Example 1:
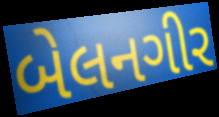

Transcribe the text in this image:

બેલનગીર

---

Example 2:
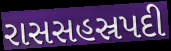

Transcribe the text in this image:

રાસસહસ્રપદી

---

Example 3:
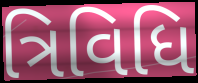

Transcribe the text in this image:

ત્રિવિધિ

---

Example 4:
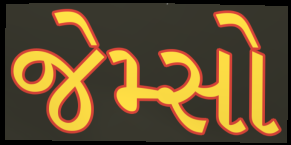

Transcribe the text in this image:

જેમ્સો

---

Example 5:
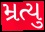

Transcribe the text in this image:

મ્રત્યુ